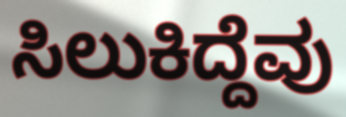
ಸಿಲುಕಿದ್ದೆವು